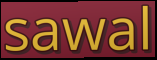
sawal